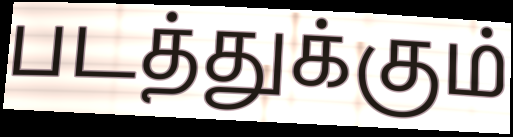
படத்துக்கும்